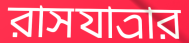
রাসযাত্রার